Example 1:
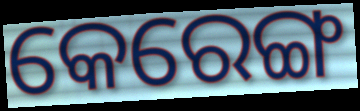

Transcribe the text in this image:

କେରେଙ୍ଗ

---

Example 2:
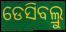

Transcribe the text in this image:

ଡେସିବଲ୍ରୁ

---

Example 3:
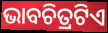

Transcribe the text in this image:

ଭାବଚିତ୍ରଟିଏ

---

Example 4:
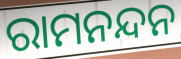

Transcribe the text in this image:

ରାମନନ୍ଦନ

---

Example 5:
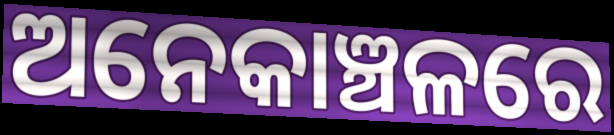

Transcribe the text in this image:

ଅନେକାଞ୍ଚଳରେ